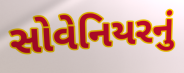
સોવેનિયરનું